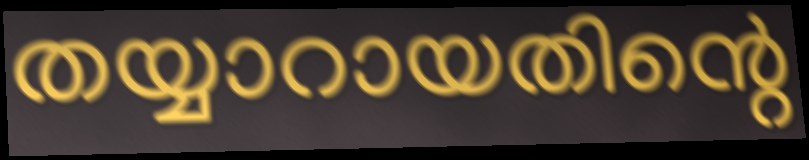
തയ്യാറായതിന്റെ